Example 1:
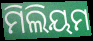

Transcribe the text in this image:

ମିଲିୟମ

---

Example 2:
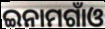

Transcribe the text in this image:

ଇନାମଗାଁଓ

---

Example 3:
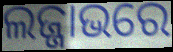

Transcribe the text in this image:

ଲଜ୍ଜାଭରେ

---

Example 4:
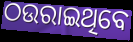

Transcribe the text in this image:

ଠଉରାଇଥିବେ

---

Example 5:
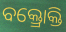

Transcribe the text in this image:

ବକ୍ତ୍ରୋକ୍ତି